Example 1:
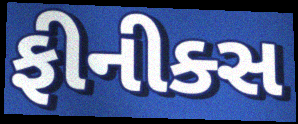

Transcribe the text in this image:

ફીનીક્સ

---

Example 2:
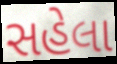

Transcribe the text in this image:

સહેલા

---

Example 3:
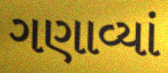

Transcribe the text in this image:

ગણાવ્યાં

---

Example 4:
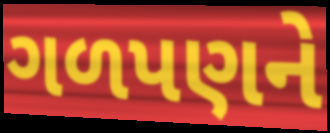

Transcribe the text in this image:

ગળપણને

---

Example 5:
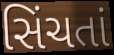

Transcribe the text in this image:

સિંચતાં